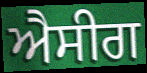
ਐਸੀਗ